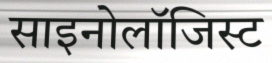
साइनोलॉजिस्ट